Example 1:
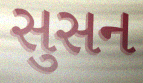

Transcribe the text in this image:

સુસન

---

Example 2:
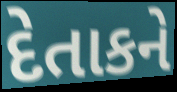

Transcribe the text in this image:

દેતાકને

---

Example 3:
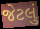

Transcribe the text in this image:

જેટલું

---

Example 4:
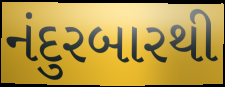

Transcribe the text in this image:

નંદુરબારથી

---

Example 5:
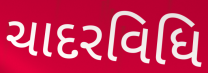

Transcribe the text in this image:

ચાદરવિધિ